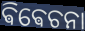
ଵିଵେଚନା